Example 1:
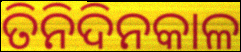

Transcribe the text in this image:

ତିନିଦିନକାଳ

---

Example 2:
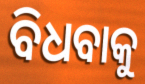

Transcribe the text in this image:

ବିଧବାକୁ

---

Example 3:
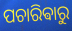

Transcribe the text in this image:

ପଚାରିଵାରୁ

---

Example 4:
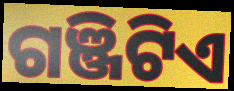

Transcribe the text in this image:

ଗଞ୍ଜିଟିଏ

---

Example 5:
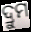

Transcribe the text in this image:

ଦ୍ରୁମ